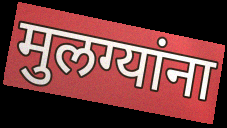
मुलग्यांना